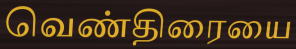
வெண்திரையை